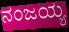
ನಂಜಯ್ಯ